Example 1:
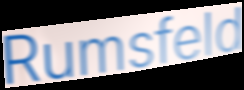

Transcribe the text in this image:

Rumsfeld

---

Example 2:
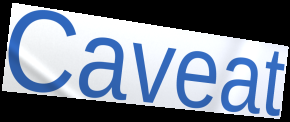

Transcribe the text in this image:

Caveat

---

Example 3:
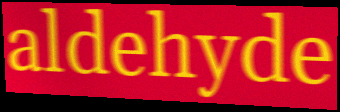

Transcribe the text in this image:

aldehyde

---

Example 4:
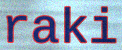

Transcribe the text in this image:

raki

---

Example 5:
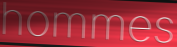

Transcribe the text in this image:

hommes